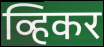
व्हिकर